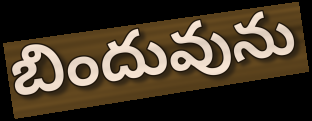
బిందువును